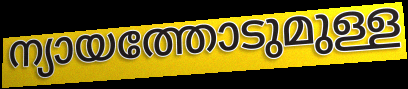
ന്യായത്തോടുമുള്ള